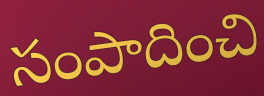
సంపాదించి